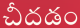
చీదడం